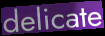
delicate